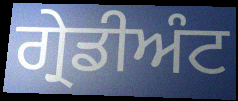
ਗ੍ਰੇਡੀਅੰਟ